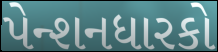
પેન્શનધારકો